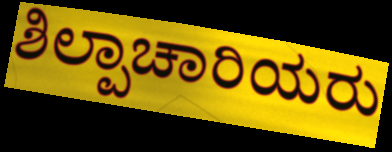
ಶಿಲ್ಪಾಚಾರಿಯರು